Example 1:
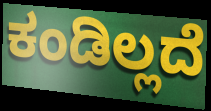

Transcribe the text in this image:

ಕಂಡಿಲ್ಲದೆ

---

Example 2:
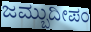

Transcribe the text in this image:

ಜಮ್ಬುದೀಪಂ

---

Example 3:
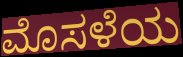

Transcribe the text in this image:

ಮೊಸಳೆಯ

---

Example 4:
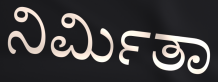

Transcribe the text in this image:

ನಿರ್ಮಿತಾ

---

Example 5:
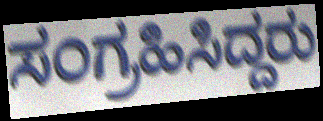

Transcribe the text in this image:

ಸಂಗ್ರಹಿಸಿದ್ದರು